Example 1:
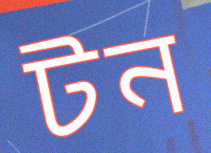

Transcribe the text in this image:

টন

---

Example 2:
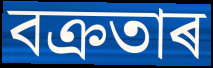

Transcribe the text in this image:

বক্ৰতাৰ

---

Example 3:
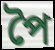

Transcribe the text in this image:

পৈ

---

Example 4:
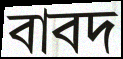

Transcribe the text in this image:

বাবদ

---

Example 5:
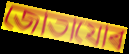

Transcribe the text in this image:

জোতাযোৰ